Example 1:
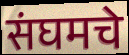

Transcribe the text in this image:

संघमचे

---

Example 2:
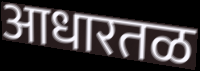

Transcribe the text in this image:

आधारतळ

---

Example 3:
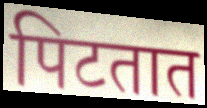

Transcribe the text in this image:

पिटतात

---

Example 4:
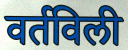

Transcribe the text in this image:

वर्तविली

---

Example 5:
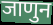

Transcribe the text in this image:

जाणुन